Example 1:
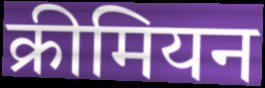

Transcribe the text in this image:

क्रीमियन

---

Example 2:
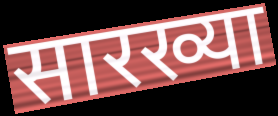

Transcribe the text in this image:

सारख्या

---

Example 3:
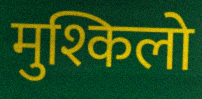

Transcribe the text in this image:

मुश्किलो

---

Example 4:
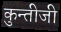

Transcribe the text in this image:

कुन्तीजी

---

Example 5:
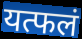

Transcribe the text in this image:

यत्फलं